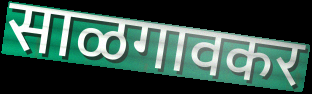
साळगावकर